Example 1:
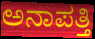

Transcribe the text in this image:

ಅನಾಪತ್ತಿ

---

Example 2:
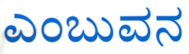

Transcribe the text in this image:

ಎಂಬುವನ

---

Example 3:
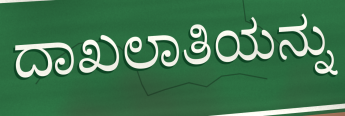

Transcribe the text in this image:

ದಾಖಲಾತಿಯನ್ನು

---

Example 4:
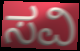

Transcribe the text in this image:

ಸವಿ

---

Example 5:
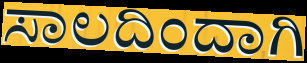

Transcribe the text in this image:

ಸಾಲದಿಂದಾಗಿ